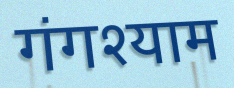
गंगश्याम